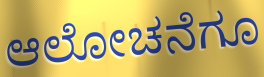
ಆಲೋಚನೆಗೂ